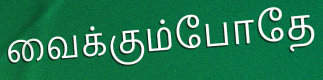
வைக்கும்போதே